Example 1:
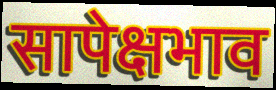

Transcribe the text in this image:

सापेक्षभाव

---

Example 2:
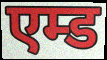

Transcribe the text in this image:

एम्ड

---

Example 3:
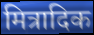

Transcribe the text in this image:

मित्रादिक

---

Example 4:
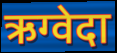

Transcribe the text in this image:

ऋग्वेदा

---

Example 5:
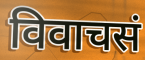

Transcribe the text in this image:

विवाचसं